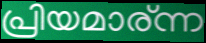
പ്രിയമാര്ന്ന